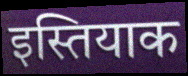
इस्तियाक